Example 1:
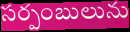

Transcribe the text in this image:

సర్పంబులును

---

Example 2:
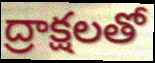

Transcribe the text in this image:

ద్రాక్షలతో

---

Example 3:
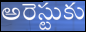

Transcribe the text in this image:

అరెస్టుకు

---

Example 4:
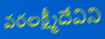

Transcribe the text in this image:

వరలక్ష్మీదేవిని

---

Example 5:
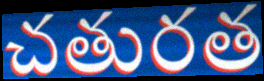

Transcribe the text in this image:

చతురత